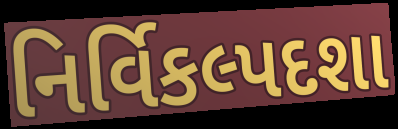
નિર્વિકલ્પદશા